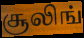
சூலிங்